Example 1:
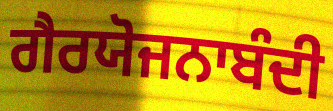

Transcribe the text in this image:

ਗੈਰਯੋਜਨਾਬੰਦੀ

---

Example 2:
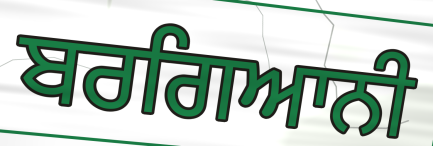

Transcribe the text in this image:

ਬਰਗਿਆਨੀ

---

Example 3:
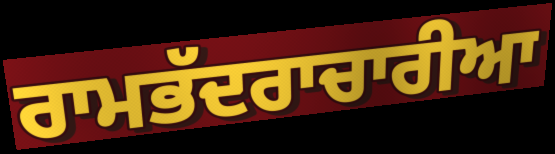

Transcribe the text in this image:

ਰਾਮਭੱਦਰਾਚਾਰੀਆ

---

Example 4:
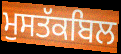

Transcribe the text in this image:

ਮੁਸਤੱਕਬਿਲ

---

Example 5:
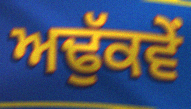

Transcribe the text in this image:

ਅਢੁੱਕਵੇਂ